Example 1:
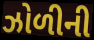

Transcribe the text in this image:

ઝોળીની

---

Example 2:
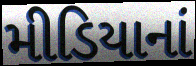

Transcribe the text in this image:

મીડિયાનાં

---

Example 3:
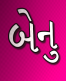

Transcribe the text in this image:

બેનુ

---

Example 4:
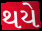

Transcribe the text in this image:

થયે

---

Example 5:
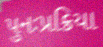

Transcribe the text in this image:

પુનઃપ્રક્રિયા